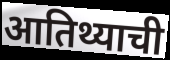
आतिथ्याची